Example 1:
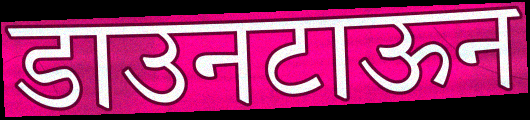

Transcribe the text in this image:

डाउनटाऊन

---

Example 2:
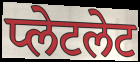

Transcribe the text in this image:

प्लेटलेट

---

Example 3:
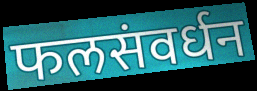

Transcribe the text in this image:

फलसंवर्धन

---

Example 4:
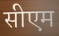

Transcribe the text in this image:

सीएम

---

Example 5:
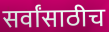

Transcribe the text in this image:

सर्वांसाठीच